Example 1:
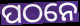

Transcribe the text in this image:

ପଠନେ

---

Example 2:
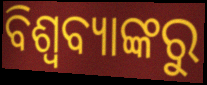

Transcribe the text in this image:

ବିଶ୍ୱବ୍ୟାଙ୍କରୁ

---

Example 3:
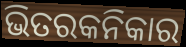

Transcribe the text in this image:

ଭିତରକନିକାର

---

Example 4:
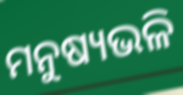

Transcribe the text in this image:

ମନୁଷ୍ୟଭଳି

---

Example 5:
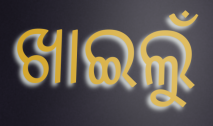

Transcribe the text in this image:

ଖାଇଲୁଁ